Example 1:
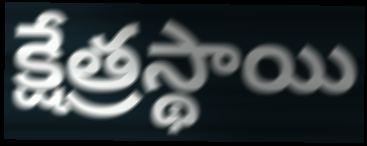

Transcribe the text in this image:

క్షేత్రస్థాయి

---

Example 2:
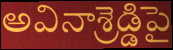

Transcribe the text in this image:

అవినాశ్రెడ్డిపై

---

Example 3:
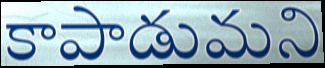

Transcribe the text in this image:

కాపాడుమని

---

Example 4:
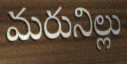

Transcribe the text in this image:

మరునిల్లు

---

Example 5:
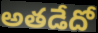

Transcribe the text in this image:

అతడేదో